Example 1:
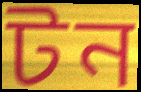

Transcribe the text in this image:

টন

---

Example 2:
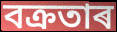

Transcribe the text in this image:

বক্ৰতাৰ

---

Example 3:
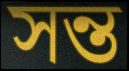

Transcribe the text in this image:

সন্ত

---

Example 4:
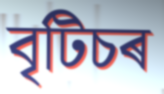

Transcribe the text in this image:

বৃটিচৰ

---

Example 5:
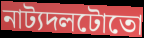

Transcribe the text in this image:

নাট্যদলটোতো